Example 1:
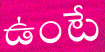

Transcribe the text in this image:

ఉంటే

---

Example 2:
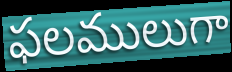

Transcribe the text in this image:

ఫలములుగా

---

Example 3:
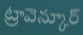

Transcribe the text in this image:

ట్రావెన్కూర్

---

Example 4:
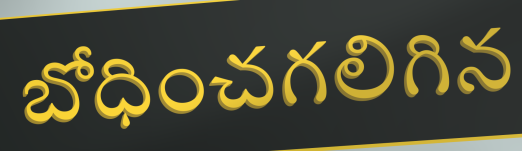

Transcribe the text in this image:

బోధించగలిగిన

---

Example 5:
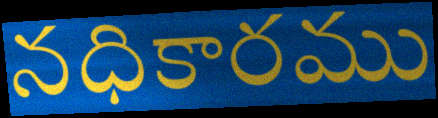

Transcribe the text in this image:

నధికారము